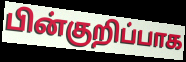
பின்குறிப்பாக